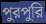
পুরপুরি